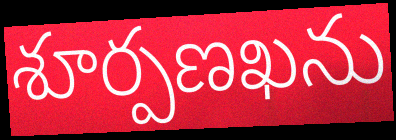
శూర్పణఖను